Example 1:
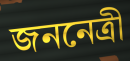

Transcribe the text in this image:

জননেত্রী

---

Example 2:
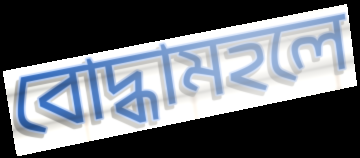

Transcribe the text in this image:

বোদ্ধামহলে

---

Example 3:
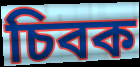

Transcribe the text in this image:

চিবক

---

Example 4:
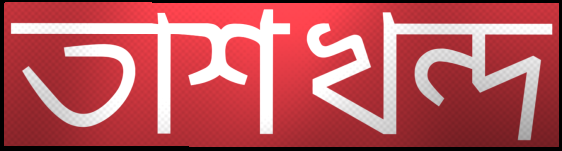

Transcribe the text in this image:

তাশখন্দ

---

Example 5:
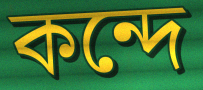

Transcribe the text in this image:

কন্দে